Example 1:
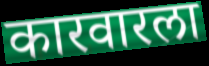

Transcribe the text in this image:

कारवारला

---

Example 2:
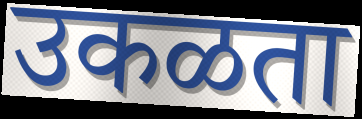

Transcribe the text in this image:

उकळता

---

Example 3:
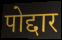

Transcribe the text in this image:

पोद्दार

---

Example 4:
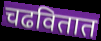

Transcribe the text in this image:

चढवितात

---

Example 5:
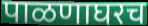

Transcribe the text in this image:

पाळणाघरच